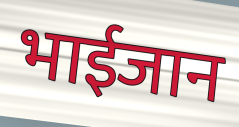
भाईजान